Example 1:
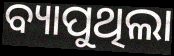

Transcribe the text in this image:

ବ୍ୟାପୁଥିଲା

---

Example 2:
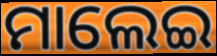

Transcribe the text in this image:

ମାଲେଇ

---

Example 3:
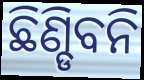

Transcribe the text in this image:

ଛିଣ୍ଡିବନି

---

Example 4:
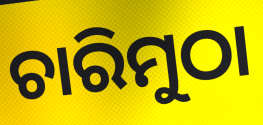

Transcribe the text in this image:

ଚାରିମୁଠା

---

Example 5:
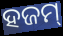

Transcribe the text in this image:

ହଜମ୍